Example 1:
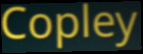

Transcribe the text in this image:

Copley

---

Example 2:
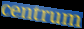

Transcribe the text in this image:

centrum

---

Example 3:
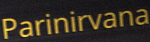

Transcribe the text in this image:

Parinirvana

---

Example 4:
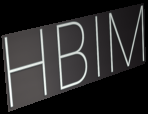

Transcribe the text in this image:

HBIM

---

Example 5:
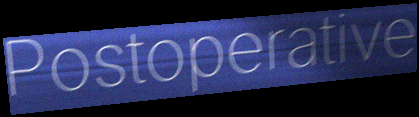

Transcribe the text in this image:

Postoperative